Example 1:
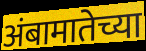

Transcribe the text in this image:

अंबामातेच्या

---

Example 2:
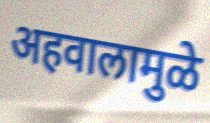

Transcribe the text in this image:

अहवालामुळे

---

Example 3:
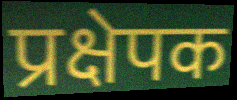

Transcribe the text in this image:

प्रक्षेपक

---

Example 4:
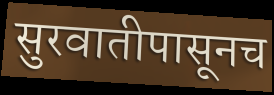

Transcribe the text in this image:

सुरवातीपासूनच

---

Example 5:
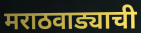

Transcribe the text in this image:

मराठवाड्याची